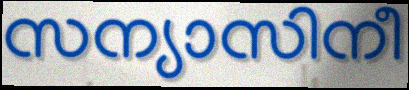
സന്യാസിനീ